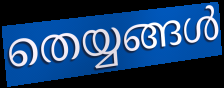
തെയ്യങ്ങൾ